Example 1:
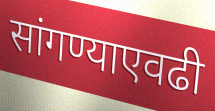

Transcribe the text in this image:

सांगण्याएवढी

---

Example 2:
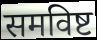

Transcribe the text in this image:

समविष्ट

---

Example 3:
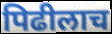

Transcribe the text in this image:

पिढीलाच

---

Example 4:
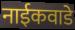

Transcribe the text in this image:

नाईकवाडे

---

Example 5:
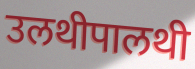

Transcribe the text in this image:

उलथीपालथी